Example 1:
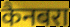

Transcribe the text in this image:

कैनबरा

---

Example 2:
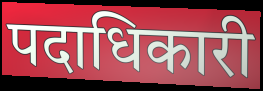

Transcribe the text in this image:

पदाधिकारी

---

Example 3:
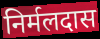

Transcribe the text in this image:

निर्मलदास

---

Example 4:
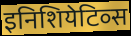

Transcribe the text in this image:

इनिशियेटिव्स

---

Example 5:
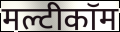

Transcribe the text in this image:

मल्टीकॉम